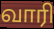
வாரி